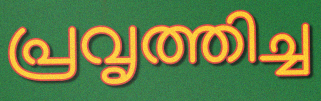
പ്രവൃത്തിച്ച